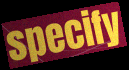
specify